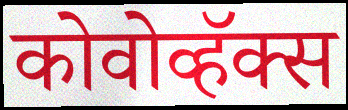
कोवोव्हॅक्स